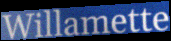
Willamette